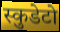
स्कुडेटो